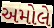
અમોલે